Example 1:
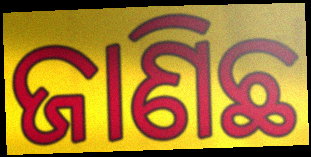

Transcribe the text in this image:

ଜାଣିଛ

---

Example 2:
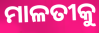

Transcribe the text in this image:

ମାଳତୀକୁ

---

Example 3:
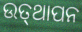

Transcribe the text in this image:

ଉତ୍‍ଥାପନ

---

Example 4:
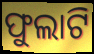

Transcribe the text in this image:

ଫୁଲାଟି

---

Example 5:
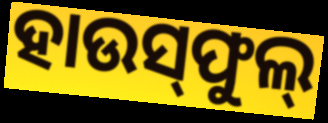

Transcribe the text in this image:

ହାଉସ୍‌ଫୁଲ୍